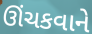
ઊંચકવાને